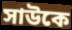
সাউকে